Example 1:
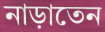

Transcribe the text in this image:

নাড়াতেন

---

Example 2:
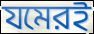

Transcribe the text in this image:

যমেরই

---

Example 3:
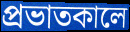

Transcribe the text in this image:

প্রভাতকালে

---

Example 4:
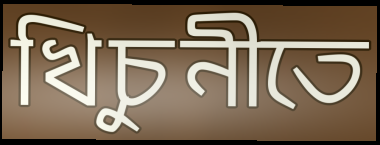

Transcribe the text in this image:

খিচুনীতে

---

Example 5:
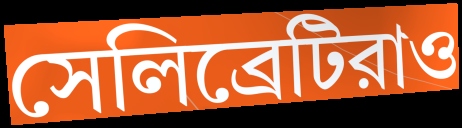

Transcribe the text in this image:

সেলিব্রেটিরাও